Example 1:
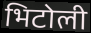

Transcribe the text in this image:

भिटोली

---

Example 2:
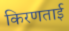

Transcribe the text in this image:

किरणताई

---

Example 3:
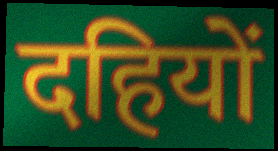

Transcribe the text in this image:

दहियों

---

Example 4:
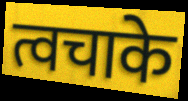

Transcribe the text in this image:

त्वचाके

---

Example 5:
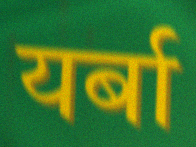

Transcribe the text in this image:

यर्बा